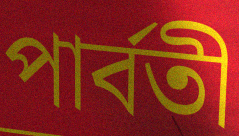
পাৰ্বতী